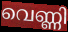
വെണ്ണി